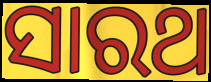
ସାରଥ